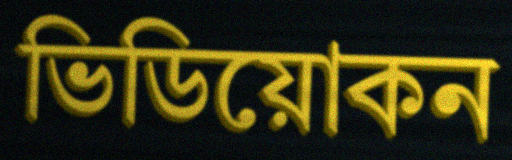
ভিডিয়োকন